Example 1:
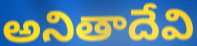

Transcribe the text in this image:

అనితాదేవి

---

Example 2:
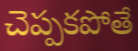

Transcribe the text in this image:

చెప్పకపోతే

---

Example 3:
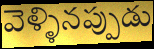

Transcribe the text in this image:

వెళ్ళినప్పుడు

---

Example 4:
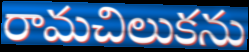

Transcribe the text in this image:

రామచిలుకను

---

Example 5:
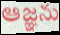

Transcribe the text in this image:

ఆజ్ఞను